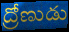
ద్రోణుడు